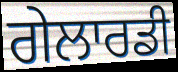
ਗੇਲਾਰਡੀ